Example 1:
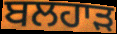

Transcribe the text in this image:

ਬਲਹਾੜ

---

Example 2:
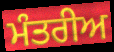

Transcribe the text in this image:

ਮੰਤਰੀਅ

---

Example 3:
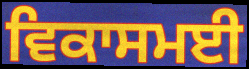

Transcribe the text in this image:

ਵਿਕਾਸਮਈ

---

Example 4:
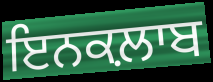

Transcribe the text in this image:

ਇਨਕ਼ਲਾਬ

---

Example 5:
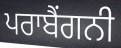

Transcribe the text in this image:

ਪਰਾਬੈਂਗਨੀ